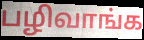
பழிவாங்க